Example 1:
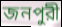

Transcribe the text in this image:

জনপুরী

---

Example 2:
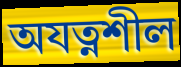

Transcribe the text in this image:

অযত্নশীল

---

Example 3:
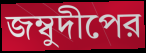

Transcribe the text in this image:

জম্বুদীপের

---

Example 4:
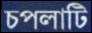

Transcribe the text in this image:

চপলাটি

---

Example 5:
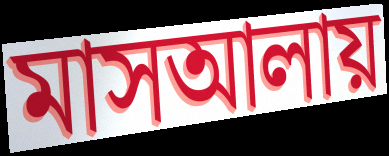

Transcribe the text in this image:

মাসআলায়